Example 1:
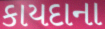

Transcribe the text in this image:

કાયદાના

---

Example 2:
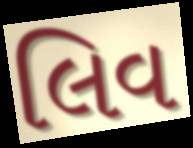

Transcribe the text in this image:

લિવ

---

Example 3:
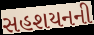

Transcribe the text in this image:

સહશયનની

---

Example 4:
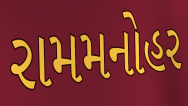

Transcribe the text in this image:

રામમનોહર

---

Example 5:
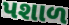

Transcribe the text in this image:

પશાળ